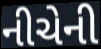
નીચેની